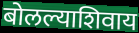
बोलल्याशिवाय